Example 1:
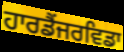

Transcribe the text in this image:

ਹਾਰਡੈਂਜਰਵਿਡਾ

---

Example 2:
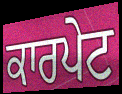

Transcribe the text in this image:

ਕਾਰਪੇਟ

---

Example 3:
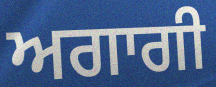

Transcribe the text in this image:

ਅਗਾਗੀ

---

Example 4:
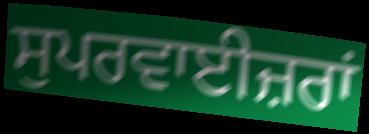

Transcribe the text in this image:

ਸੁਪਰਵਾਈਜ਼ਰਾਂ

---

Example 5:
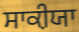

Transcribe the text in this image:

ਸਾਕ਼ੀਯਾ